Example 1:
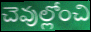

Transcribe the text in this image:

చెవుల్లోంచి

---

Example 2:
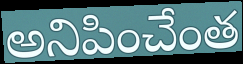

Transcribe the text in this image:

అనిపించేంత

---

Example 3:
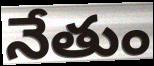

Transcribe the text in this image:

నేతుం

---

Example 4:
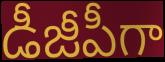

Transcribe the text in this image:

డీజీపీగా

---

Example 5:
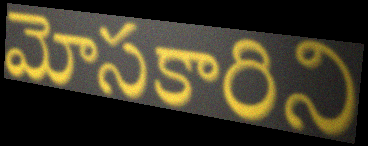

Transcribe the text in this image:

మోసకారిని